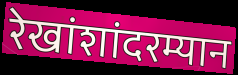
रेखांशांदरम्यान